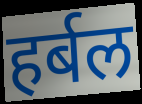
हर्बल